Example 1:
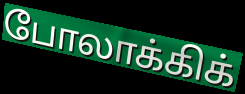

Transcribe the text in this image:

போலாக்கிக்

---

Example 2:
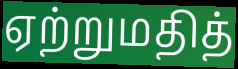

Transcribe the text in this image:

ஏற்றுமதித்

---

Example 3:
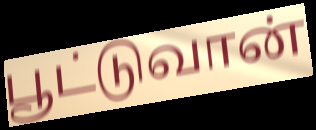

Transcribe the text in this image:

பூட்டுவான்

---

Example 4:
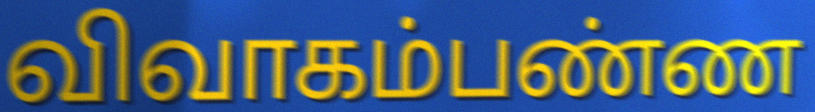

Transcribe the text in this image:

விவாகம்பண்ண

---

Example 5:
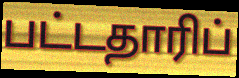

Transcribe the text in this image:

பட்டதாரிப்